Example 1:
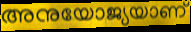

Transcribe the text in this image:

അനുയോജ്യയാണ്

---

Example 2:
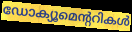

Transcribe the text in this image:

ഡോക്യൂമെന്ററികൾ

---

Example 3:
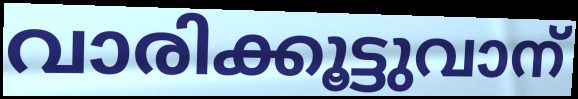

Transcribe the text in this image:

വാരിക്കൂട്ടുവാന്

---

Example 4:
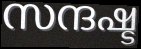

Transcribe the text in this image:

സന്ദഷ്ട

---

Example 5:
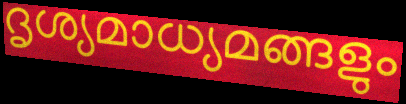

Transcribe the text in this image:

ദൃശ്യമാധ്യമങ്ങളും